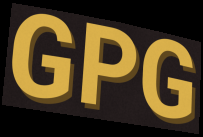
GPG